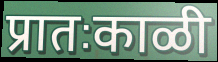
प्रातःकाळी